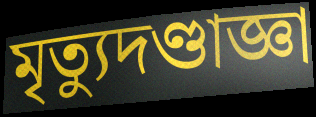
মৃত্যুদণ্ডাজ্ঞা